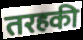
तरहकी